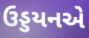
ઉડ્ડયનએ